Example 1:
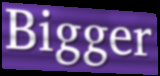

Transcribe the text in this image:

Bigger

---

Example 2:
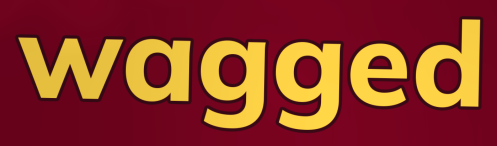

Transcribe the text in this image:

wagged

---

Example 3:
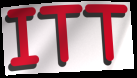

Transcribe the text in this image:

ITT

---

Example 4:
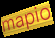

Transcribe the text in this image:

mapio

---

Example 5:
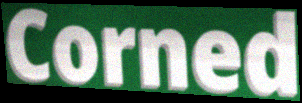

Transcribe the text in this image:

Corned